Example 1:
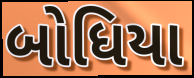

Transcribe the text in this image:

બોધિયા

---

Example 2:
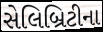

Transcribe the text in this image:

સેલિબ્રિટીના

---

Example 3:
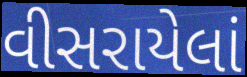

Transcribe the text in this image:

વીસરાયેલાં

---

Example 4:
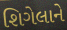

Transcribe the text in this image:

શિગેલાને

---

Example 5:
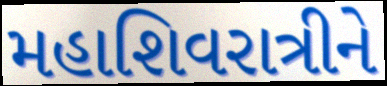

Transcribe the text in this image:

મહાશિવરાત્રીને